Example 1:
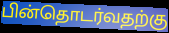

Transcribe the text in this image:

பின்தொடர்வதற்கு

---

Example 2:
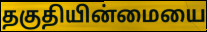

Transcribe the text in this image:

தகுதியின்மையை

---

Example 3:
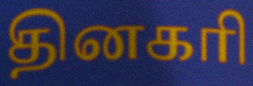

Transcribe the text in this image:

தினகரி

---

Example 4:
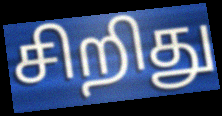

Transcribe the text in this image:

சிறிது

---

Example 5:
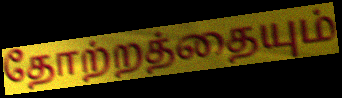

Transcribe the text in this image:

தோற்றத்தையும்